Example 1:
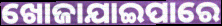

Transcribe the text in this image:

ଖୋଜାଯାଇପାରେ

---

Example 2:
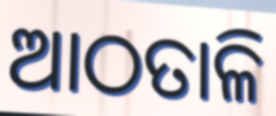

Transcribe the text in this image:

ଆଠତାଳି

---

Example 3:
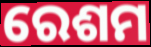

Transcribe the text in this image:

ରେଶମ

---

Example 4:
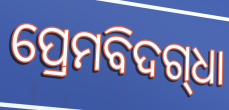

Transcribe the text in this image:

ପ୍ରେମବିଦଗ୍‍ଧା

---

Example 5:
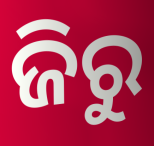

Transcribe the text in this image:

ଜିରୁ